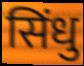
सिंधु